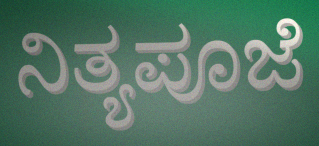
ನಿತ್ಯಪೂಜೆ